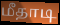
மீதாடி